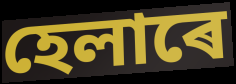
হেলাৰে